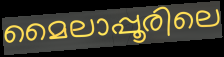
മൈലാപ്പൂരിലെ